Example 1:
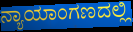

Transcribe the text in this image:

ನ್ಯಾಯಾಂಗಣದಲ್ಲಿ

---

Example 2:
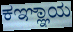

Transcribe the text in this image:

ಕಞ್ಞಾಯ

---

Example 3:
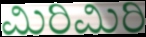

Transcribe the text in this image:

ಮಿರಿಮಿರಿ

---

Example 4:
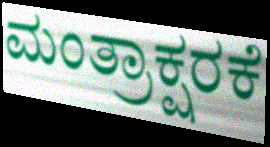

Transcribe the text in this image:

ಮಂತ್ರಾಕ್ಷರಕೆ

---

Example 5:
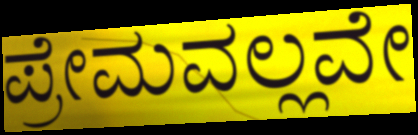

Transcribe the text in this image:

ಪ್ರೇಮವಲ್ಲವೇ